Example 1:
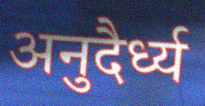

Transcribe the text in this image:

अनुदैर्ध्य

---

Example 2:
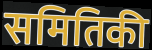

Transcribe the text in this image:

समितिकी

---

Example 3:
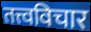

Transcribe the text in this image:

तत्त्वविचार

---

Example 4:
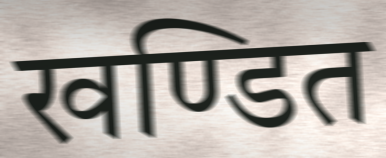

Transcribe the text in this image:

खण्डित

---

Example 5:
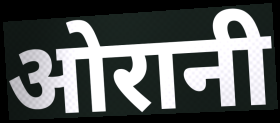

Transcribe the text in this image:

ओरानी